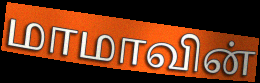
மாமாவின்